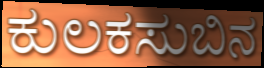
ಕುಲಕಸುಬಿನ